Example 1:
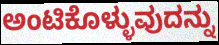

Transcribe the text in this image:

ಅಂಟಿಕೊಳ್ಳುವುದನ್ನು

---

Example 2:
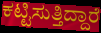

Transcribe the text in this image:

ಕಟ್ಟಿಸುತ್ತಿದ್ದಾರೆ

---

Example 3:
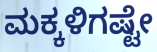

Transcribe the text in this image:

ಮಕ್ಕಳಿಗಷ್ಟೇ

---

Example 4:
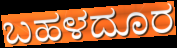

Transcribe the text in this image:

ಬಹಳದೂರ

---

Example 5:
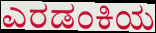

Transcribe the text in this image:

ಎರಡಂಕಿಯ